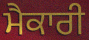
ਮੈਕਾਰੀ